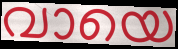
വായെ